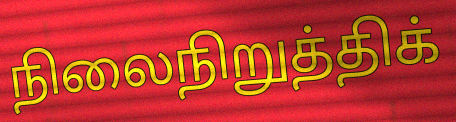
நிலைநிறுத்திக்